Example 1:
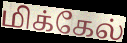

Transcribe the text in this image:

மிக்கேல்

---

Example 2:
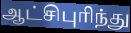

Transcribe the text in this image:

ஆட்சிபுரிந்து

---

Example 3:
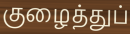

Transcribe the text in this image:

குழைத்துப்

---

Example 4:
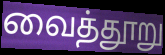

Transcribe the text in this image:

வைத்தூறு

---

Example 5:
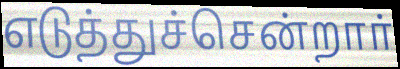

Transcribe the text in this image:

எடுத்துச்சென்றார்